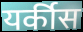
यर्कीस